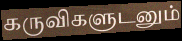
கருவிகளுடனும்